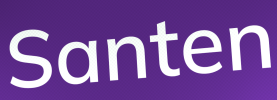
Santen